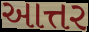
આત્તર